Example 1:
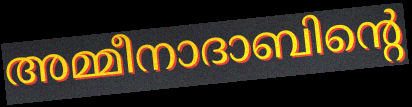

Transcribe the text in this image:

അമ്മീനാദാബിന്റെ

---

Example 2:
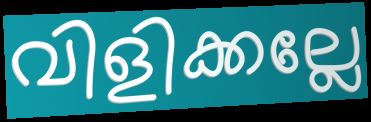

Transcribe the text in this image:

വിളിക്കല്ലേ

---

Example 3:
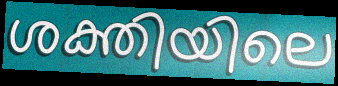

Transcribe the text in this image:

ശക്തിയിലെ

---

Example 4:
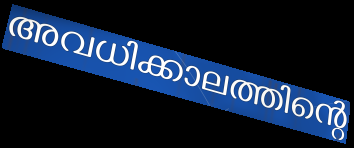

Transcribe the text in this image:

അവധിക്കാലത്തിന്റെ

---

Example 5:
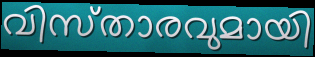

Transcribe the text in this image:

വിസ്‌താരവുമായി